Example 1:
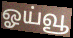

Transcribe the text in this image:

ஓய்வூ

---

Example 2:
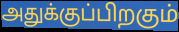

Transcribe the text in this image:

அதுக்குப்பிறகும்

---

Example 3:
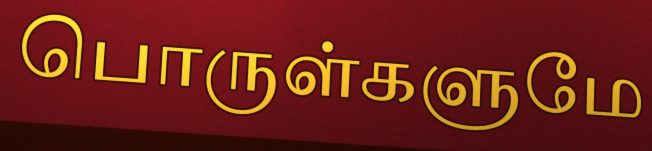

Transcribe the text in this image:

பொருள்களுமே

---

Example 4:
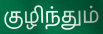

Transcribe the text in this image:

குழிந்தும்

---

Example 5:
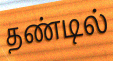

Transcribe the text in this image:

தண்டில்